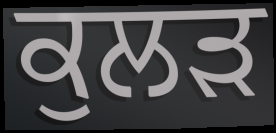
ਕੁਲੜ